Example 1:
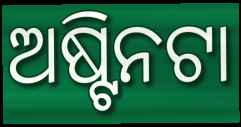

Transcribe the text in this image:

ଅଷ୍ଟିନଟା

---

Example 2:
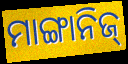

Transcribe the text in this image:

ମାଙ୍ଗାନିଜ୍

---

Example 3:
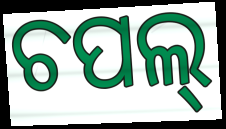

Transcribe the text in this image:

ଚପଲ୍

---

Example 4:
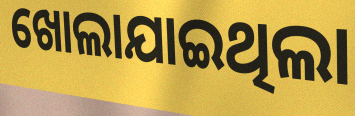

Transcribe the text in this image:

ଖୋଲାଯାଇଥିଲା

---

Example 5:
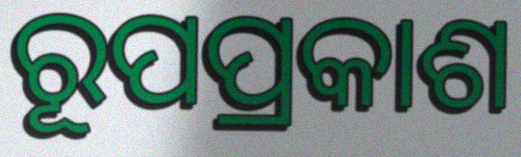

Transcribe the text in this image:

ରୂପପ୍ରକାଶ